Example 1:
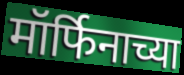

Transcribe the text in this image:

मॉर्फिनाच्या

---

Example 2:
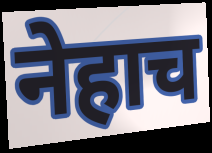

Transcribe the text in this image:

नेहाच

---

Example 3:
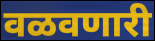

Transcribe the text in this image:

वळवणारी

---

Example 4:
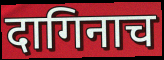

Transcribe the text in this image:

दागिनाच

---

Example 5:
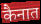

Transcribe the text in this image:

कैनात